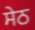
ਸੇਠ